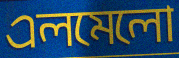
এলমেলো